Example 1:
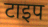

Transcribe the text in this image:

टाइप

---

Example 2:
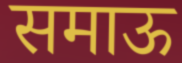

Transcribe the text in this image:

समाऊ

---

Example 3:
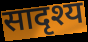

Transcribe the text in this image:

सादृश्य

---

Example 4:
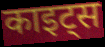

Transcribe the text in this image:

काइट्स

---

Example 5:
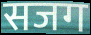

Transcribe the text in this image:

सजग